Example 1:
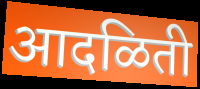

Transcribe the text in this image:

आदळिती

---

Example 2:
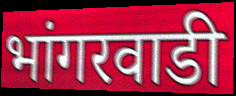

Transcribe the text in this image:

भांगरवाडी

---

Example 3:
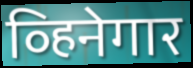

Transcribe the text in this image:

व्हिनेगार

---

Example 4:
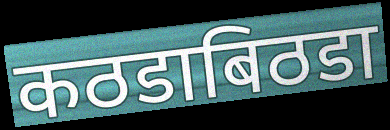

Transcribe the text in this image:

कठडाबिठडा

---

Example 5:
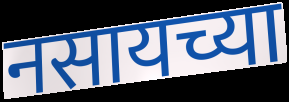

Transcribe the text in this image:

नसायच्या